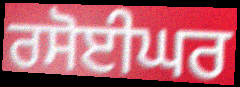
ਰਸੋਈਘਰ